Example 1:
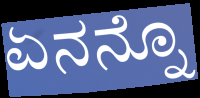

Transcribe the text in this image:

ಏನನ್ನೊ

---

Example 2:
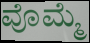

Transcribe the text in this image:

ವೊಮ್ಮೆ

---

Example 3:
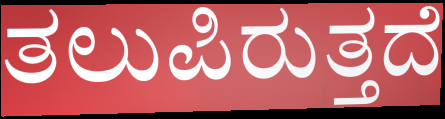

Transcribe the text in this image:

ತಲುಪಿರುತ್ತದೆ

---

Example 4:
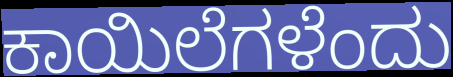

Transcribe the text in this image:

ಕಾಯಿಲೆಗಳೆಂದು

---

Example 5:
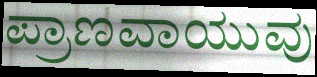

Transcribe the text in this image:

ಪ್ರಾಣವಾಯುವು